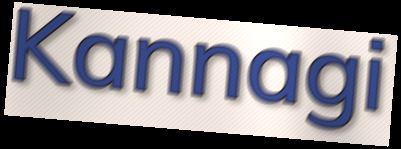
Kannagi